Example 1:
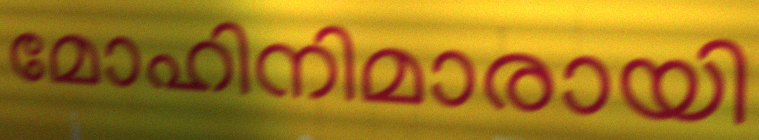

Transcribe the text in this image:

മോഹിനിമാരായി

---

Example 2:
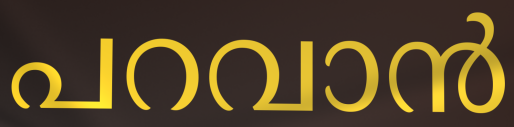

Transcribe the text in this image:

പറവാൻ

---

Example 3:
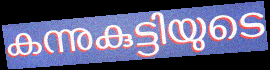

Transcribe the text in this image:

കന്നുകുട്ടിയുടെ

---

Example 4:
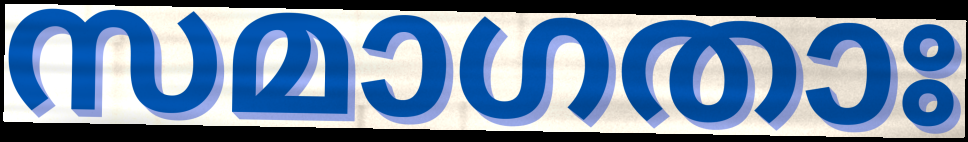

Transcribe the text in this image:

സമാഗതാഃ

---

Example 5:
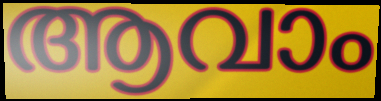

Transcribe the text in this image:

ആവാം